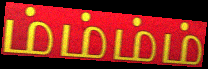
ம்ம்ம்ம்